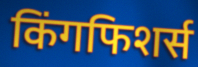
किंगफिशर्स